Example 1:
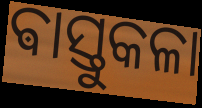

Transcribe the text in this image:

ଵାସ୍ତୁକଳା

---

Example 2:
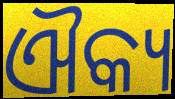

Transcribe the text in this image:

ଐକ୍ୟ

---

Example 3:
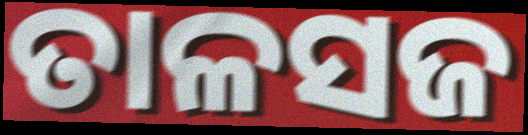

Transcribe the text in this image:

ତାଳସଜ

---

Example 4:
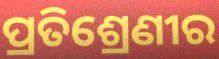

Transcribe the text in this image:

ପ୍ରତିଶ୍ରେଣୀର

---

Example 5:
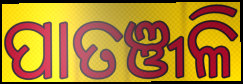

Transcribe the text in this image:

ପାତଞ୍ଜଳି